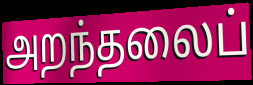
அறந்தலைப்